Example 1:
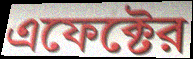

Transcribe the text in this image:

এফেক্টের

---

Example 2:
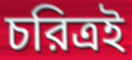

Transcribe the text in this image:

চরিত্রই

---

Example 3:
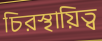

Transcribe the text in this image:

চিরস্থায়িত্ব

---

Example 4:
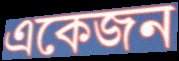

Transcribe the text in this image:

একেজন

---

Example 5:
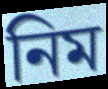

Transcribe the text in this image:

নিম